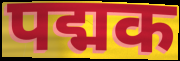
पद्मक